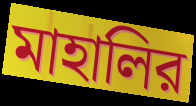
মাহালির